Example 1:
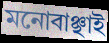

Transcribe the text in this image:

মনোবাঞ্ছাই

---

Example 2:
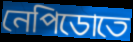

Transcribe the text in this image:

নেপিডোতে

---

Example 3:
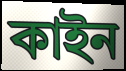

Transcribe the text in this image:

কাইন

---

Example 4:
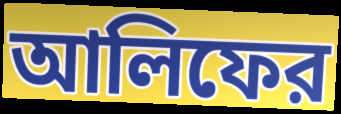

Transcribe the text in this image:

আলিফের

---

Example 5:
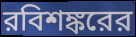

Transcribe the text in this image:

রবিশঙ্করের